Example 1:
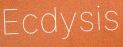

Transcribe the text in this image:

Ecdysis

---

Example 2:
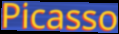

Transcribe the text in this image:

Picasso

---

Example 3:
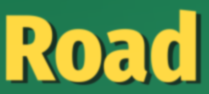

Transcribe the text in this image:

Road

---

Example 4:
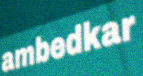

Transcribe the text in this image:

ambedkar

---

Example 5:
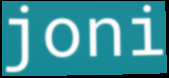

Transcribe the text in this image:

joni